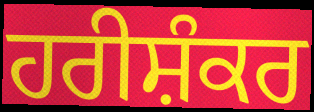
ਹਰੀਸ਼ੰਕਰ